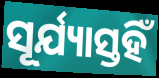
ସୂର୍ଯ୍ୟାସ୍ତହିଁ